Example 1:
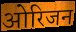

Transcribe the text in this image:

ओरिजन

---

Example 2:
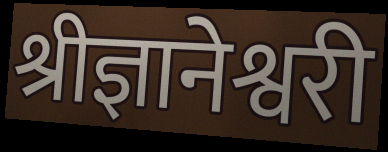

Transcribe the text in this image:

श्रीज्ञानेश्वरी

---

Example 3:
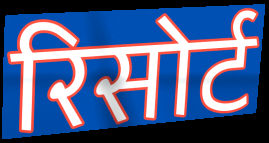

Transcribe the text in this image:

रिसोर्ट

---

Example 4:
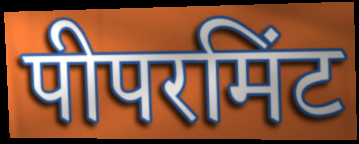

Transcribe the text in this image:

पीपरमिंट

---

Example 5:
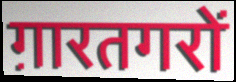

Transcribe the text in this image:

ग़ारतगरों